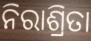
ନିରାଶ୍ରିତା